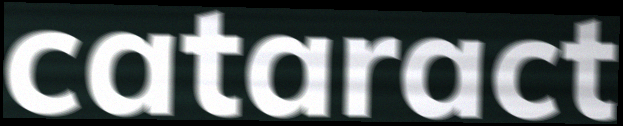
cataract